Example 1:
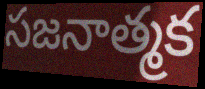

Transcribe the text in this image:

సజనాత్మక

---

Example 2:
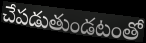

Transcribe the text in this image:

చేపడుతుండటంతో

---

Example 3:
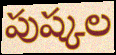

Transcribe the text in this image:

పుష్కల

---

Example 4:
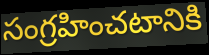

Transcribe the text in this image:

సంగ్రహించటానికి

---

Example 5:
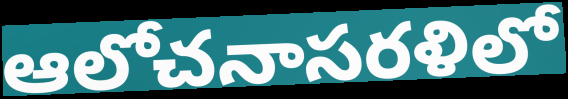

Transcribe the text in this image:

ఆలోచనాసరళిలో